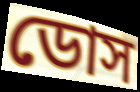
ডোস